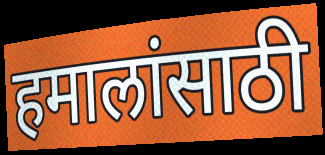
हमालांसाठी